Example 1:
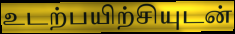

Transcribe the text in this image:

உடற்பயிற்சியுடன்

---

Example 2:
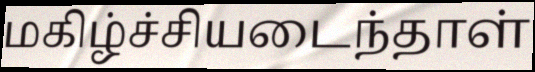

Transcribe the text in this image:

மகிழ்ச்சியடைந்தாள்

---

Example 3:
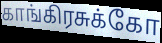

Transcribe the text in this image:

காங்கிரசுக்கோ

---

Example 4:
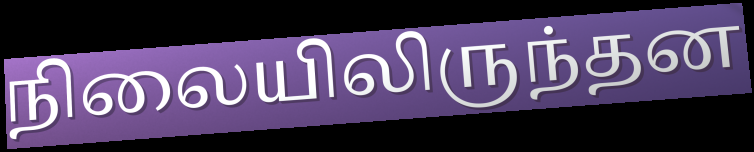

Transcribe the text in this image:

நிலையிலிருந்தன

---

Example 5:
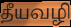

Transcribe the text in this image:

தீயவழி